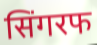
सिंगरफ